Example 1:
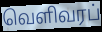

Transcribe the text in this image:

வெளிவரப்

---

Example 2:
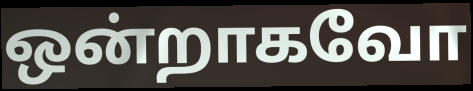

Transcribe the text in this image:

ஒன்றாகவோ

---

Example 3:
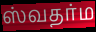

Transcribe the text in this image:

ஸ்வதர்ம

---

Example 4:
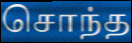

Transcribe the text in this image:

சொந்த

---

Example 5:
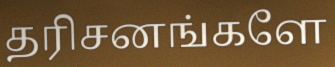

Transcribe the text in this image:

தரிசனங்களே